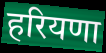
हरियणा